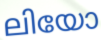
ലിയോ